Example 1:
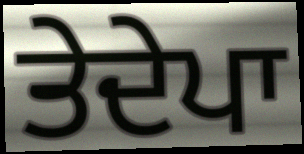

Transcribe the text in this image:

ਤੇਦੇਪਾ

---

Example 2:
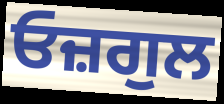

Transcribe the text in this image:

ਓਜ਼ਗੁਲ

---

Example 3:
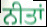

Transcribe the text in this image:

ਨੀਤਾਂ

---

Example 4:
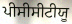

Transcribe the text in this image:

ਪੀਸੀਸੀਟੀਯੂ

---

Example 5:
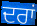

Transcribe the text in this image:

ਦਰਾਂ